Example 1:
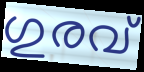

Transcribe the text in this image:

ഗുരവ്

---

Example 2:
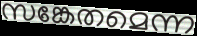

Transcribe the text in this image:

സങ്കേതമെന്ന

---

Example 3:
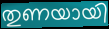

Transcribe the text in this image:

തുണയായി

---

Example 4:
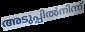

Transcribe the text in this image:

അടുപ്പിൽനിന്ന്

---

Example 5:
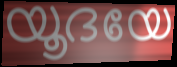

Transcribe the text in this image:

യൂദയേ